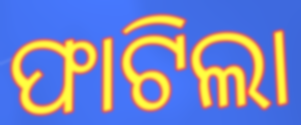
ଫାଟିଲା